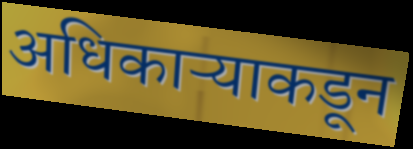
अधिकाऱ्याकडून